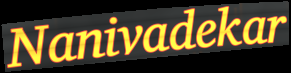
Nanivadekar